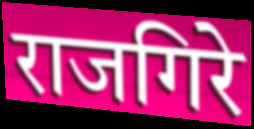
राजगिरे